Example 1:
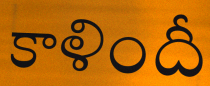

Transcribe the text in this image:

కాళిందీ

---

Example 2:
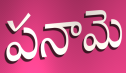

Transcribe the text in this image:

పనామె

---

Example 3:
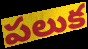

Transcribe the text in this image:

పలుక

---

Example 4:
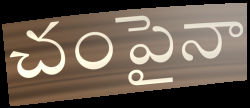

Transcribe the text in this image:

చంపైనా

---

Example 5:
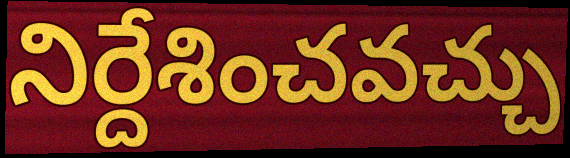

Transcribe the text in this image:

నిర్దేశించవచ్చు